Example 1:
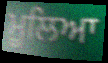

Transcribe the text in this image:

ਮੂਲਿਆ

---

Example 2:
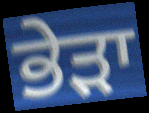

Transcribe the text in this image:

ਭੇੜਾ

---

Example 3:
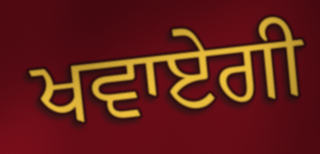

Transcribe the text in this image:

ਖਵਾਏਗੀ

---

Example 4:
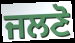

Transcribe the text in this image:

ਜਲਣੋ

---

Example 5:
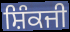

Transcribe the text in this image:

ਸ਼ਿੰਕਜੀ